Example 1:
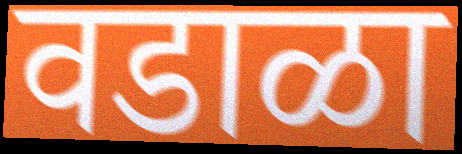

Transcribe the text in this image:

वडाळा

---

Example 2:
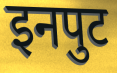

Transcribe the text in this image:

इनपुट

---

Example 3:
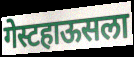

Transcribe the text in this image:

गेस्टहाऊसला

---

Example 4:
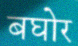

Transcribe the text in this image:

बघोर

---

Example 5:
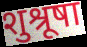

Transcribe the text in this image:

शुश्रूषा